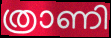
ത്രാണി